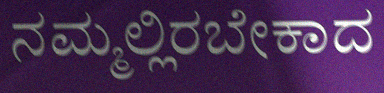
ನಮ್ಮಲ್ಲಿರಬೇಕಾದ